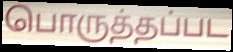
பொருத்தப்பட